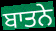
ਬਾਤਨੇ